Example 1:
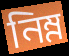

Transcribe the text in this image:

নিম্ন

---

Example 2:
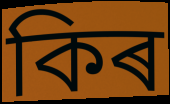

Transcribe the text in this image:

কিৰ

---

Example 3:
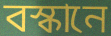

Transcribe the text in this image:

বস্কানে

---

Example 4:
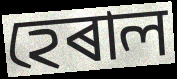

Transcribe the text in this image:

হেৰাল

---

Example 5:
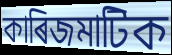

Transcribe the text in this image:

কাৰিজমাটিক